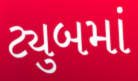
ટ્યુબમાં